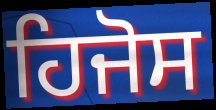
ਹਿਜੋਸ